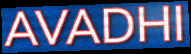
AVADHI